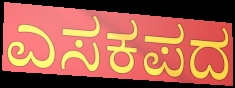
ಎಸಕಪದ